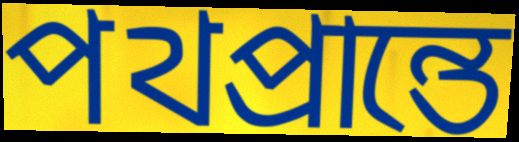
পথপ্রান্তে